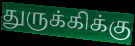
துருக்கிக்கு